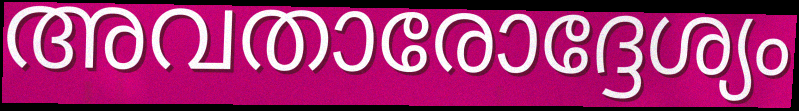
അവതാരോദ്ദേശ്യം